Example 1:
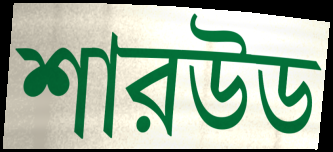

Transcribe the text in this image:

শারউড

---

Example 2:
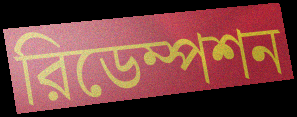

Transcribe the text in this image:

রিডেম্পশন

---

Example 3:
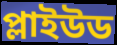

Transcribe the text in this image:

প্লাইউড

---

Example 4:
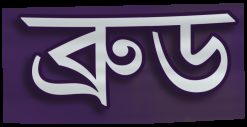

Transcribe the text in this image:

ব্রুড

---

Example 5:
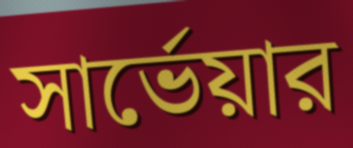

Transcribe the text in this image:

সার্ভেয়ার